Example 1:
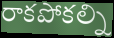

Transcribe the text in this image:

రాకపోకల్ని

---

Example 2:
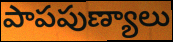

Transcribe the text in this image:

పాపపుణ్యాలు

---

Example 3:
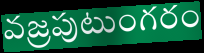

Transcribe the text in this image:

వజ్రపుటుంగరం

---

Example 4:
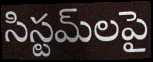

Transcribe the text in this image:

సిస్టమ్‌లపై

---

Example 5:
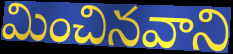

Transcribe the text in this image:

మించినవాని